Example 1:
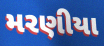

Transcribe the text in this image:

મરણીયા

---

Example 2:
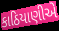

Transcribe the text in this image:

કાઠિયાણીએ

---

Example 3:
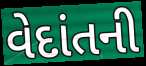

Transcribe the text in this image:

વેદાંતની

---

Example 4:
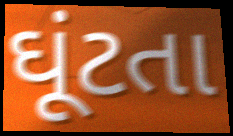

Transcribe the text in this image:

ઘૂંટતા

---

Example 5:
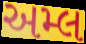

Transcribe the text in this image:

અમ્લ